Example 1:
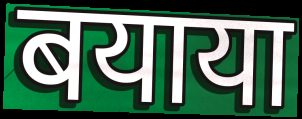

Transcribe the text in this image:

बयाया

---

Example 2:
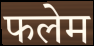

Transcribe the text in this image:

फलेम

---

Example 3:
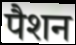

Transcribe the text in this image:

पैशन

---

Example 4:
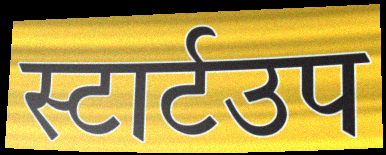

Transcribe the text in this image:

स्टार्टउप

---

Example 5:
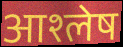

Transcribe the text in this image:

आश्लेष